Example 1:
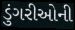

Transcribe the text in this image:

ડુંગરીઓની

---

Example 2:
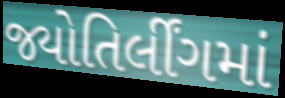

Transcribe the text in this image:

જ્યોતિર્લીંગમાં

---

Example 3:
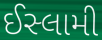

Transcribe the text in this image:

ઈસ્લામી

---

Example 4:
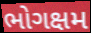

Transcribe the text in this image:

ભોગક્ષમ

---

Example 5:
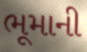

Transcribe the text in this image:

ભૂમાની